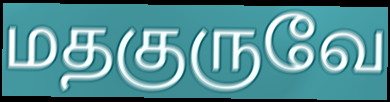
மதகுருவே